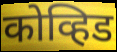
कोव्हिड